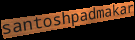
santoshpadmakar